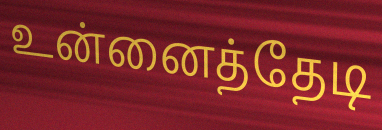
உன்னைத்தேடி